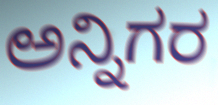
ಅನ್ನಿಗರ